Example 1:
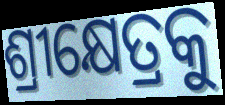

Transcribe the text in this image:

ଶ୍ରୀକ୍ଷେତ୍ରକୁ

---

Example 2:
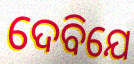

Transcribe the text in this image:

ଦେବିଯେ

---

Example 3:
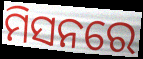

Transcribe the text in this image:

ମିସନରେ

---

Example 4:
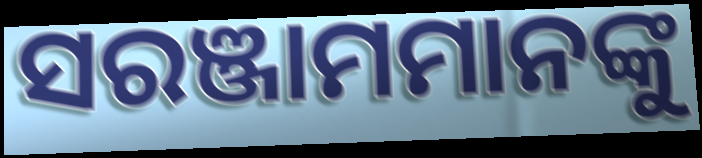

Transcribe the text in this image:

ସରଞ୍ଜାମମାନଙ୍କୁ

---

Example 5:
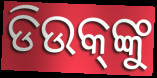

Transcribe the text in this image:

ଡିଉକ୍‌ଙ୍କୁ